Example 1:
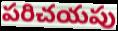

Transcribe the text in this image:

పరిచయపు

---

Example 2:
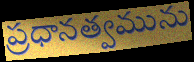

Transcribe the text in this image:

ప్రధానత్వమును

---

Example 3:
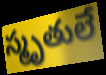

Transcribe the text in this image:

స్మృతులే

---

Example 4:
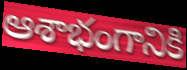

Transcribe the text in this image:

ఆశాభంగానికి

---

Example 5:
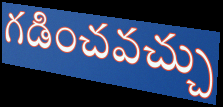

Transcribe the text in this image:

గడించవచ్చు